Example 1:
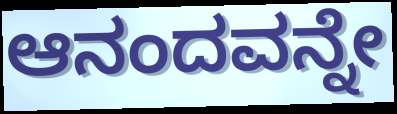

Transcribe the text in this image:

ಆನಂದವನ್ನೇ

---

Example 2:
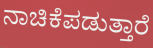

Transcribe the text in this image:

ನಾಚಿಕೆಪಡುತ್ತಾರೆ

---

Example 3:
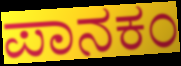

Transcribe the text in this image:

ಪಾನಕಂ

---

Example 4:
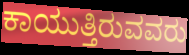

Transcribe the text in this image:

ಕಾಯುತ್ತಿರುವವರು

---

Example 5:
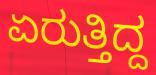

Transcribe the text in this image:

ಏರುತ್ತಿದ್ದ